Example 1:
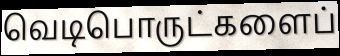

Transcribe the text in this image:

வெடிபொருட்களைப்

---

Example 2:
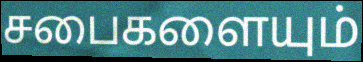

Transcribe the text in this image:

சபைகளையும்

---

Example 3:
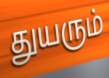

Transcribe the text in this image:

துயரும்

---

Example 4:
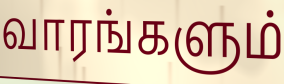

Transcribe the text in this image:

வாரங்களும்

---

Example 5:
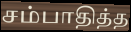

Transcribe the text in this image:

சம்பாதித்த